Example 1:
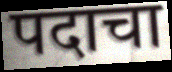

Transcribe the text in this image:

पदाचा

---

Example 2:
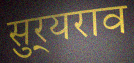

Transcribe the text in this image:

सुर्यराव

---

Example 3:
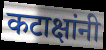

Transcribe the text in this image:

कटाक्षांनी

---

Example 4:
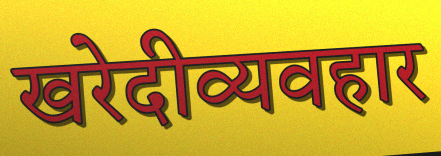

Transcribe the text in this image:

खरेदीव्यवहार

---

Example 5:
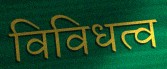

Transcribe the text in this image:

विविधत्व